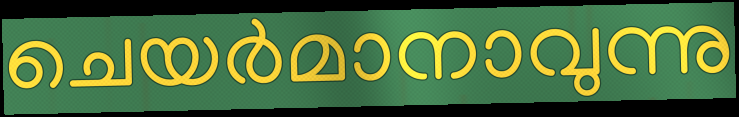
ചെയർമാനാവുന്നു